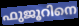
ഫുജൂറിനെ